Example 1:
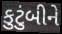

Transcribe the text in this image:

કુટુંબીને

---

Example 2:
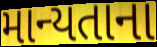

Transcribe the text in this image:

માન્યતાના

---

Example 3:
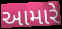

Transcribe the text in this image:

આમારે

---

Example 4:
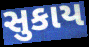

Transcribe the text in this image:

સુકાય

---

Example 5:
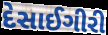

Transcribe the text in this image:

દેસાઈગીરી